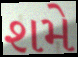
શમે